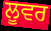
ਲੂਵਰ